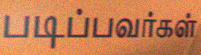
படிப்பவர்கள்